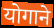
योगाने